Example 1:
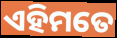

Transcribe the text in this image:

ଏହିମତେ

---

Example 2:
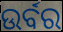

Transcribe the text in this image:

ଉର୍ବର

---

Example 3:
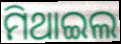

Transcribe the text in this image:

ମିଥାଇଲ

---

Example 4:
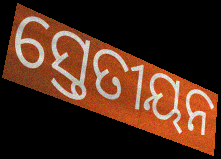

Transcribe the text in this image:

ସ୍ତେତୀୟନ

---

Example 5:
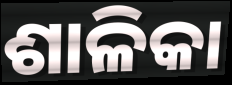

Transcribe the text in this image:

ଶାଳିକା